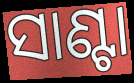
ସାଣ୍ଟା